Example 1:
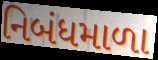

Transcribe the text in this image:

નિબંધમાળા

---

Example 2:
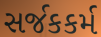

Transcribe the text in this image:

સર્જકકર્મ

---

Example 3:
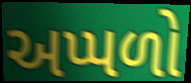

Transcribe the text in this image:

અપ્પળો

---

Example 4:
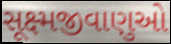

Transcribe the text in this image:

સૂક્ષ્મજીવાણુઓ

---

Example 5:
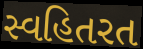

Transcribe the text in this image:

સ્વહિતરત